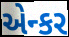
એન્કર